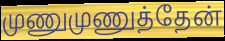
முணுமுணுத்தேன்